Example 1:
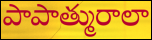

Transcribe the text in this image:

పాపాత్మురాలా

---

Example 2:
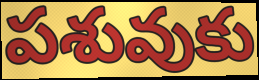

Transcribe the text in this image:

పశువుకు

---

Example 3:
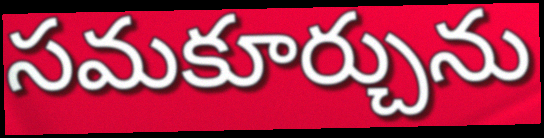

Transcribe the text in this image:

సమకూర్చును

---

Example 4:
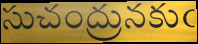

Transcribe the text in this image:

సుచంద్రునకుఁ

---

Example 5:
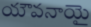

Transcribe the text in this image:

యౌవనాయై